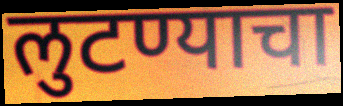
लुटण्याचा